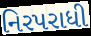
નિરપરાધી